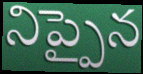
నిప్పైన